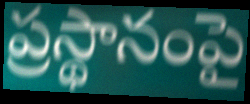
ప్రస్థానంపై